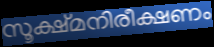
സൂക്ഷ്മനിരീക്ഷണം